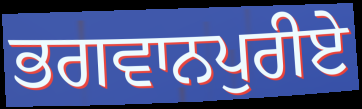
ਭਗਵਾਨਪੁਰੀਏ